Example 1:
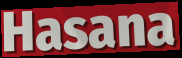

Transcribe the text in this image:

Hasana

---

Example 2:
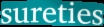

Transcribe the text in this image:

sureties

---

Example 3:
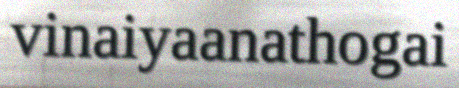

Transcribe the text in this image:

vinaiyaanathogai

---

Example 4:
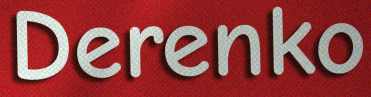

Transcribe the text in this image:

Derenko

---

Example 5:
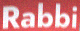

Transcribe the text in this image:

Rabbi